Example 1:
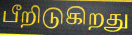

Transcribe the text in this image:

பீறிடுகிறது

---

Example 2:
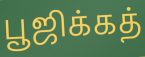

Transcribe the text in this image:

பூஜிக்கத்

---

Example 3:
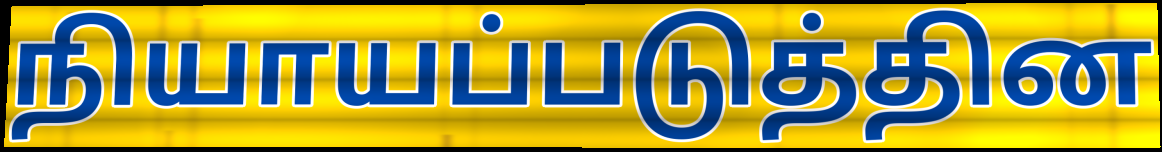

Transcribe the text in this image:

நியாயப்படுத்தின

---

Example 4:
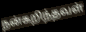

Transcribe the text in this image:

நன்கறிந்தவள்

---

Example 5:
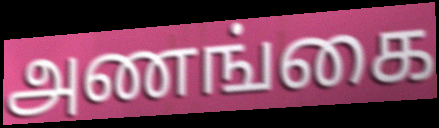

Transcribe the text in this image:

அணங்கை